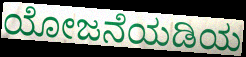
ಯೋಜನೆಯಡಿಯ